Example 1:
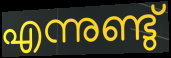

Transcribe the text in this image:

എന്നുണ്ടു്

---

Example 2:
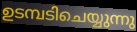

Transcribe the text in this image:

ഉടമ്പടിചെയ്യുന്നു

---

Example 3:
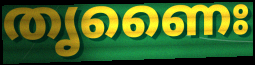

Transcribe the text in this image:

തൃണൈഃ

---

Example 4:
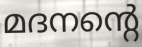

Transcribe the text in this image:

മദനന്റെ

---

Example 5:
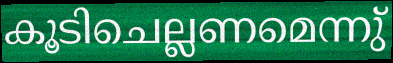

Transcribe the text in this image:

കൂടിചെല്ലണമെന്നു്